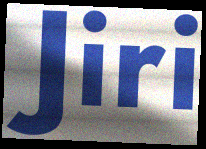
Jiri